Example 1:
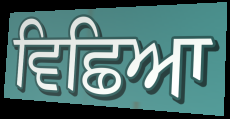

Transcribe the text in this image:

ਵਿਛਿਆ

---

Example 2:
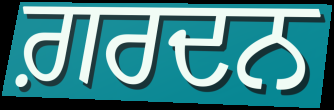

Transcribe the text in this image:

ਗ਼ਰਦਨ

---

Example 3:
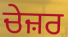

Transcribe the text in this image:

ਚੇਜ਼ਰ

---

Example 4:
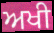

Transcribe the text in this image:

ਅਖੀ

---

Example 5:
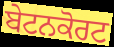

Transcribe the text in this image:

ਬੇਟਨਕੋਰਟ